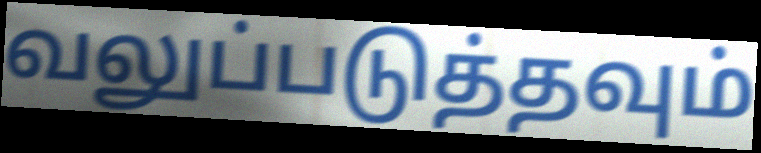
வலுப்படுத்தவும்